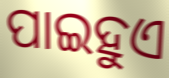
ପାଇହୁଏ